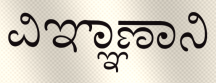
ವಿಞ್ಞಾಣಾನಿ